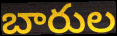
బారుల